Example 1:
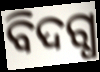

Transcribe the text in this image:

ବିଦଗ୍ଧ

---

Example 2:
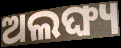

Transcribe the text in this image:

ଅଲଙ୍ଘ୍ୟ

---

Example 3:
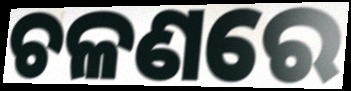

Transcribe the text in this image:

ଚଳଣରେ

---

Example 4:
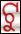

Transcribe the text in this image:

ଟୁ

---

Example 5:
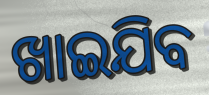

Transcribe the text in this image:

ଖାଇଯିବ